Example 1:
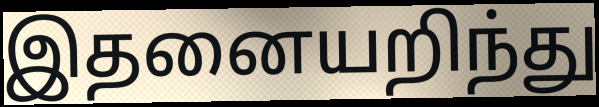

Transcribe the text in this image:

இதனையறிந்து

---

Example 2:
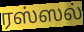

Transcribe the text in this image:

ரஸ்ஸல்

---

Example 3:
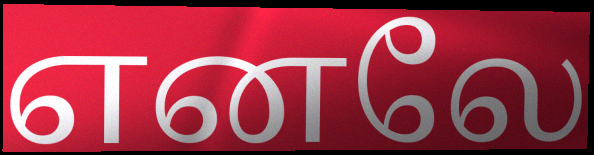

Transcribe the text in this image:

எனலே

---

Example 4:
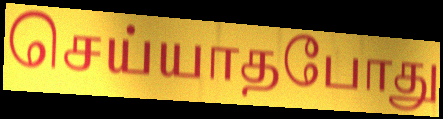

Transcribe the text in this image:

செய்யாதபோது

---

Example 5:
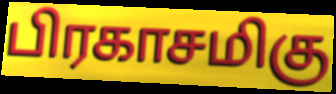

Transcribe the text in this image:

பிரகாசமிகு